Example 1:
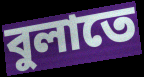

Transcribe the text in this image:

বুলাতে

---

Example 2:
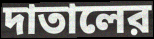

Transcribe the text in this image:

দাতালের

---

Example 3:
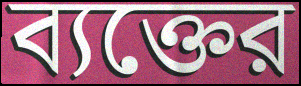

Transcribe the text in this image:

ব্যক্তের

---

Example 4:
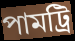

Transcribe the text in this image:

পামট্রি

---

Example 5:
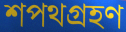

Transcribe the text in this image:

শপথগ্রহণ